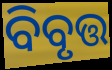
ବିବୃତ୍ତ